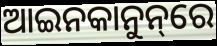
ଆଇନକାନୁନ୍‌ରେ